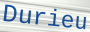
Durieu